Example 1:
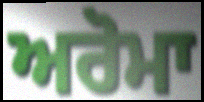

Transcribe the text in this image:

ਅਰੋਮਾ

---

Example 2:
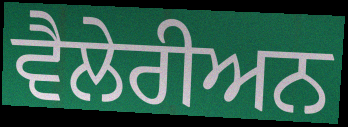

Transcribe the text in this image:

ਵੈਲੇਰੀਅਨ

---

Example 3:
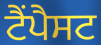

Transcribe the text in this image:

ਟੈਂਪੈਸਟ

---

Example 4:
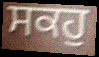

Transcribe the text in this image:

ਸਕਹੁ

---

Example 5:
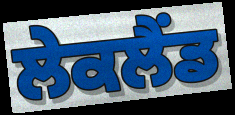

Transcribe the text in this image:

ਲੇਕਲੈਂਡ